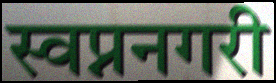
स्वप्ननगरी